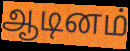
ஆடினம்